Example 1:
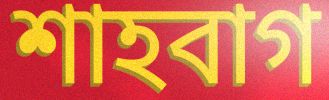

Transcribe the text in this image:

শাহবাগ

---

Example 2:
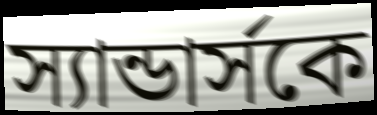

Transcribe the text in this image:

স্যান্ডার্সকে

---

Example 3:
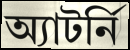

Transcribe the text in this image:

অ্যাটর্নি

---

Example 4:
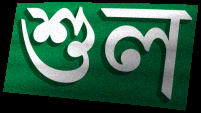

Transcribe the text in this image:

শুল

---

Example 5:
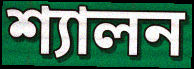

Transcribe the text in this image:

শ্যালন